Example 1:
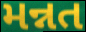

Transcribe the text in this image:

મન્નત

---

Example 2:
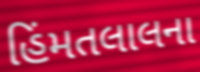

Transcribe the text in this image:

હિંમતલાલના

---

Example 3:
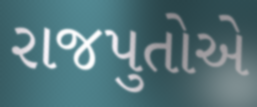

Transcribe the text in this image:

રાજપુતોએ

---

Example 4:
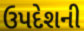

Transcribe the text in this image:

ઉપદેશની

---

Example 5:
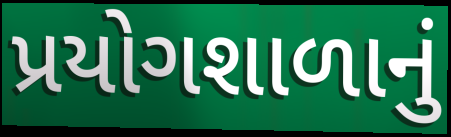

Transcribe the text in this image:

પ્રયોગશાળાનું